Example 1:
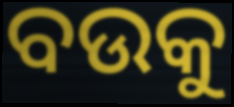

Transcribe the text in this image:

ବଉକୁ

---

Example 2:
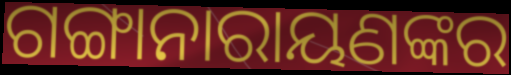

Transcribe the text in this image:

ଗଙ୍ଗାନାରାୟଣଙ୍କର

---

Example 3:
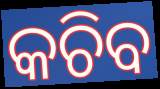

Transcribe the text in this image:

କଚିବ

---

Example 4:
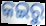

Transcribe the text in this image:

କଇରୁ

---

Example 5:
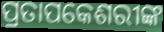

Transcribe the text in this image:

ପ୍ରତାପକେଶରୀଙ୍କ